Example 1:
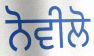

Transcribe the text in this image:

ਨੋਵੀਲੋ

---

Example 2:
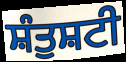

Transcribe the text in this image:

ਸ਼ੰਤੁਸ਼ਟੀ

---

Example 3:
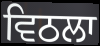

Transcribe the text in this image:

ਵਿਠਲਾ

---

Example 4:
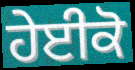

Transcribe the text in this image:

ਹੇਈਕੋ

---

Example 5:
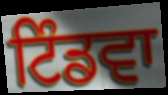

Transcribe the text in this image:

ਟਿੰਡਵਾ